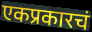
एकप्रकारचं